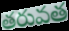
తరువత